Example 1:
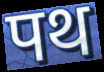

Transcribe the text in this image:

पथ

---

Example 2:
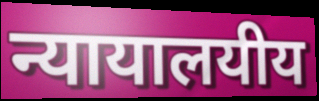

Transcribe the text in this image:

न्यायालयीय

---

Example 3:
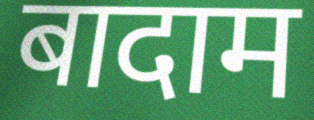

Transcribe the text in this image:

बादाम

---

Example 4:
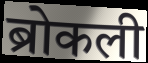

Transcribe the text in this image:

ब्रोकली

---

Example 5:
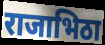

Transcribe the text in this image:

राजाभिठा